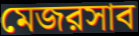
মেজরসাব